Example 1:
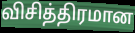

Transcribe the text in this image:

விசித்திரமான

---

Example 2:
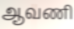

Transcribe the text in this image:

ஆவணி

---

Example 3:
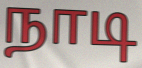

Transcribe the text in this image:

நாடி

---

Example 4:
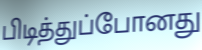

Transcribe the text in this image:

பிடித்துப்போனது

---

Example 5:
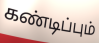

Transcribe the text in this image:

கண்டிப்பும்